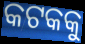
କଟକକୁ